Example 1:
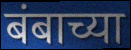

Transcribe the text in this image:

बंबाच्या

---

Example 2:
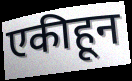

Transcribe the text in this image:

एकीहून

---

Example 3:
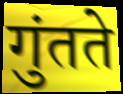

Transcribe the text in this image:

गुंतते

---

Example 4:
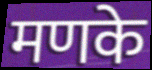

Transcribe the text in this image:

मणके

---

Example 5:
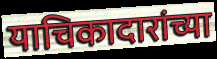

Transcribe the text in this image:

याचिकादारांच्या